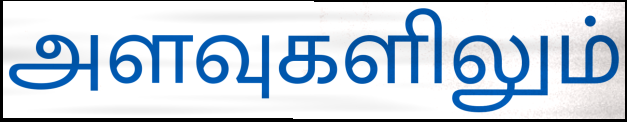
அளவுகளிலும்